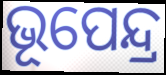
ଭୂପେନ୍ଦ୍ର